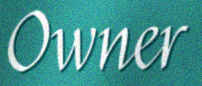
Owner